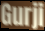
Gurji